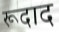
रूदाद